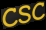
CSC